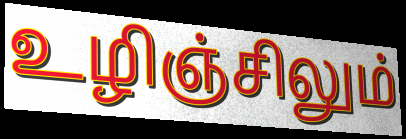
உழிஞ்சிலும்